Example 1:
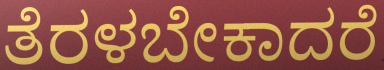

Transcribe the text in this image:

ತೆರಳಬೇಕಾದರೆ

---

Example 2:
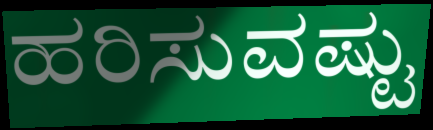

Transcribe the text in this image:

ಹರಿಸುವಷ್ಟು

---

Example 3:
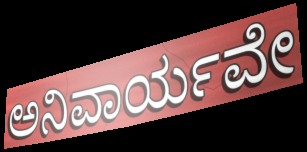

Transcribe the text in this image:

ಅನಿವಾರ್ಯವೇ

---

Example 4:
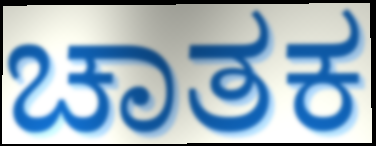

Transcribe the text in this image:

ಚಾತಕ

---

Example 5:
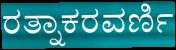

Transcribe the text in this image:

ರತ್ನಾಕರವರ್ಣಿ